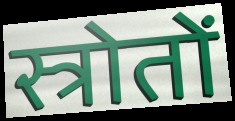
स्त्रोतों